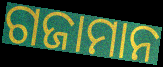
ଗଜାମାନ